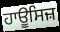
ਹਾਊਸਿਜ਼